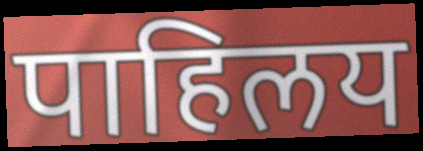
पाहिलय